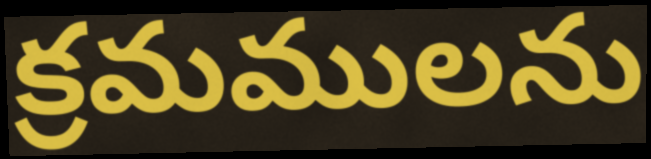
క్రమములను